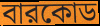
বারকোড